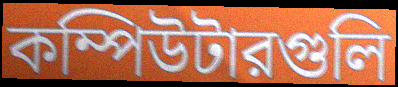
কম্পিউটারগুলি